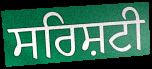
ਸਰਿਸ਼ਟੀ